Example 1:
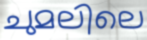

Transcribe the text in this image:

ചുമലിലെ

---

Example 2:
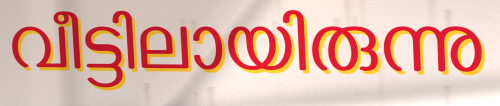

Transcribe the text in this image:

വീട്ടിലായിരുന്നു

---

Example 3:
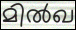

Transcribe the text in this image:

മിൽഖ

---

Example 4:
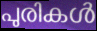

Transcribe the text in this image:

പുരികൾ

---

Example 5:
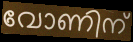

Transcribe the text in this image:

വോണിന്